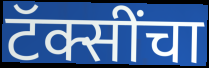
टॅक्सींचा